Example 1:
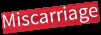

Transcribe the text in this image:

Miscarriage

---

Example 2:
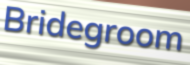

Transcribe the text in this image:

Bridegroom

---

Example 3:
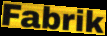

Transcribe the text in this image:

Fabrik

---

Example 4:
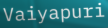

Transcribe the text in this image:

Vaiyapuri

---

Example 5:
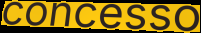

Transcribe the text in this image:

concesso